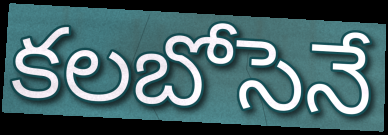
కలబోసెనే